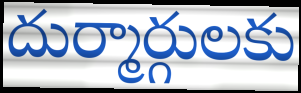
దుర్మార్గులకు